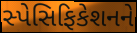
સ્પેસિફિકેશનને